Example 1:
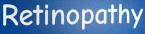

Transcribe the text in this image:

Retinopathy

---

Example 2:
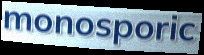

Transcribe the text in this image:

monosporic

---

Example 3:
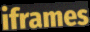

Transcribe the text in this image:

iframes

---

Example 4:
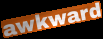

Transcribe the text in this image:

awkward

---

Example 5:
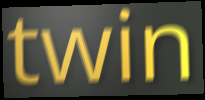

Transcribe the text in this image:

twin